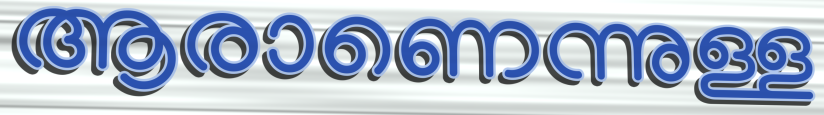
ആരാണെന്നുള്ള